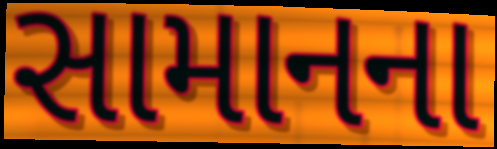
સામાનના